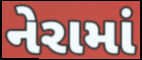
નેરામાં